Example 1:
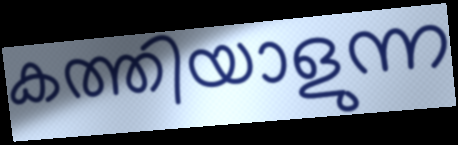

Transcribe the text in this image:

കത്തിയാളുന്ന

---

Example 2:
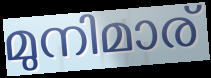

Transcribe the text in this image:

മുനിമാര്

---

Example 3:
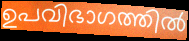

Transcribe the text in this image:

ഉപവിഭാഗത്തിൽ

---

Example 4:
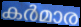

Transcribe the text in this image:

കർമാര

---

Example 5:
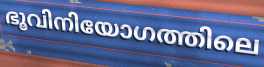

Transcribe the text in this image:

ഭൂവിനിയോഗത്തിലെ